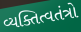
વ્યક્તિત્વતંત્રો